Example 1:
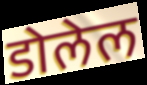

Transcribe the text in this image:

डोलेल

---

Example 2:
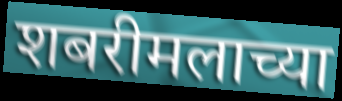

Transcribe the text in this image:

शबरीमलाच्या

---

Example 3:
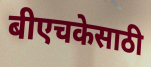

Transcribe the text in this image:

बीएचकेसाठी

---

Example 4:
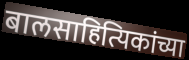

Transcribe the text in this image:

बालसाहित्यिकांच्या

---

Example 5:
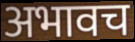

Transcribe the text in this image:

अभावच